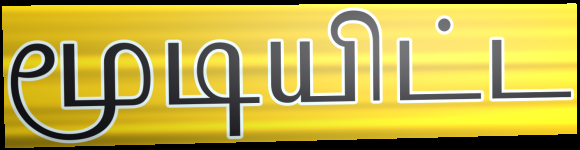
மூடியிட்ட